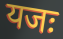
यजः